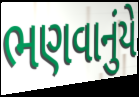
ભણવાનુંયે